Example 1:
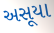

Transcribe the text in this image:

અસૂયા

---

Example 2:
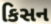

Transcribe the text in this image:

કિસન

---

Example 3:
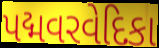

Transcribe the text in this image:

પદ્મવરવેદિકા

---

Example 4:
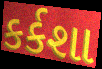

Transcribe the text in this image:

કર્કશા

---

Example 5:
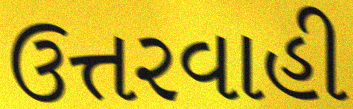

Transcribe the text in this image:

ઉત્તરવાહી